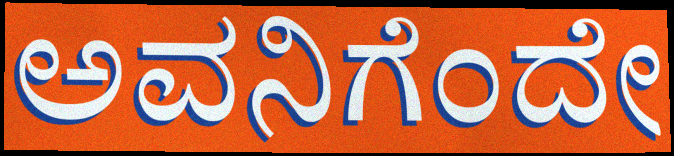
ಅವನಿಗೆಂದೇ